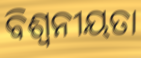
ବିଶ୍ୱନୀୟତା